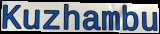
Kuzhambu